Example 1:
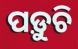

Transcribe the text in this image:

ପଡ଼ୁଚି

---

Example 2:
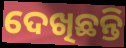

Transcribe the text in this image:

ଦେଖିଛନ୍ତି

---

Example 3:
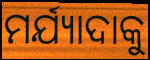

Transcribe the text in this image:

ମର୍ଯ୍ୟାଦାକୁ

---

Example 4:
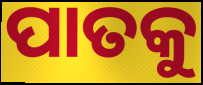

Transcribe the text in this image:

ପାତକୁ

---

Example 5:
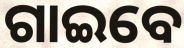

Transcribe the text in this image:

ଗାଇବେ